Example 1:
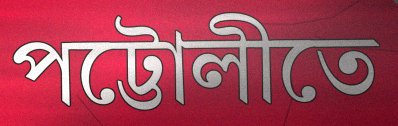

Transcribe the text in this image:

পট্টোলীতে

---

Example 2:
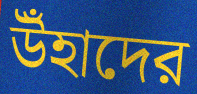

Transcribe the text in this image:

উঁহাদের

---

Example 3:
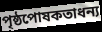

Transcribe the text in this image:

পৃষ্ঠপোষকতাধন্য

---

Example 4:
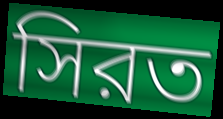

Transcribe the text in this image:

সিরত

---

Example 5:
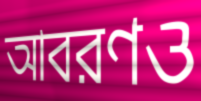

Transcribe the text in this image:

আবরণও